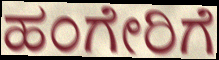
ಹಂಗೇರಿಗೆ